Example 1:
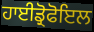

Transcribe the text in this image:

ਹਾਈਡ੍ਰੋਫੋਇਲ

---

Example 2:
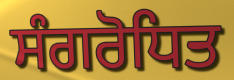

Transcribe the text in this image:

ਸੰਗਰੋਧਿਤ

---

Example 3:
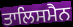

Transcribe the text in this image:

ਤਾਲਿਸਮੈਨ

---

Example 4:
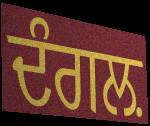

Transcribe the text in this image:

ਦੰਗਲ਼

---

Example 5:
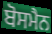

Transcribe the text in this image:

ਬੋਸਮੈਨ